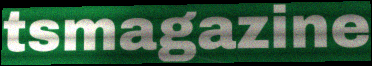
tsmagazine